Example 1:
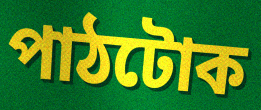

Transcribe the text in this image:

পাঠটোক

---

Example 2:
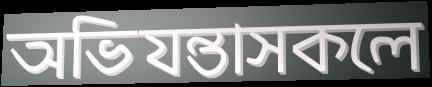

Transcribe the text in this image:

অভিযন্তাসকলে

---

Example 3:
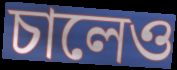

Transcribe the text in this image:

চালেও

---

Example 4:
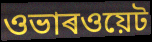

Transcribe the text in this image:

ওভাৰওয়েট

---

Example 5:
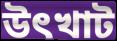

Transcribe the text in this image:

উৎখাট